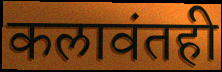
कलावंतही